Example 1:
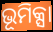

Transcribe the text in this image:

ଭୂମିକ୍ସା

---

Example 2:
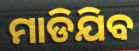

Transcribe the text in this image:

ମାଡିଯିବ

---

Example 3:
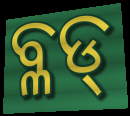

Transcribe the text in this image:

ବ୍ଳଡ୍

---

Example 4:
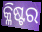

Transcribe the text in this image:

କ୍ଳିଷ୍ଟର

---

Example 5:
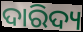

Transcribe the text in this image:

ଦାରିଦ୍ୟ